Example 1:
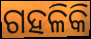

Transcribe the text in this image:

ଗହଳିକି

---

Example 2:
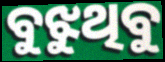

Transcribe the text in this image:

ବୁଝୁଥିବୁ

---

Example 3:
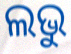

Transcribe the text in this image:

ଲଭୁ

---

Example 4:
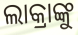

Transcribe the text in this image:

ଲାକ୍ରାଙ୍କୁ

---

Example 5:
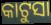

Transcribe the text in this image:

କାଟୁସା